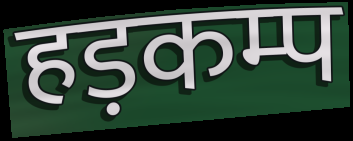
हड़कम्‍प